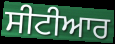
ਸੀਟੀਆਰ